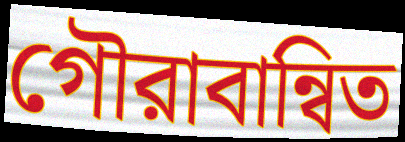
গৌরাবান্বিত